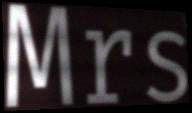
Mrs